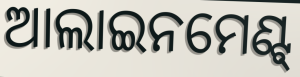
ଆଲାଇନମେଣ୍ଟ୍